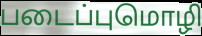
படைப்புமொழி